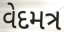
વેદમત્ર